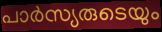
പാർസ്യരുടെയും